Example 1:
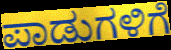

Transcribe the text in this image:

ಪಾಡುಗಳಿಗೆ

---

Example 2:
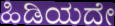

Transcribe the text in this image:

ಹಿಡಿಯದೇ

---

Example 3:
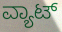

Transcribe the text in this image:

ವ್ಯಾಟ್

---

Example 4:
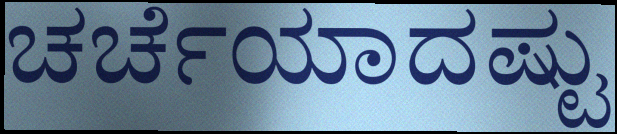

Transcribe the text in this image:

ಚರ್ಚೆಯಾದಷ್ಟು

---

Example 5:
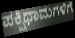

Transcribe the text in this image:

ಪಕ್ಷಿಧಾಮಗಳಿಗೆ